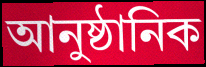
আনুষ্ঠানিক